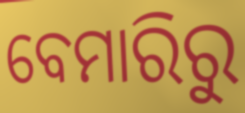
ବେମାରିରୁ